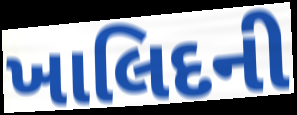
ખાલિદની